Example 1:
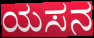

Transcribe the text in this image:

ಯಸನ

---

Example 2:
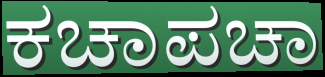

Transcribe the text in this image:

ಕಚಾಪಚಾ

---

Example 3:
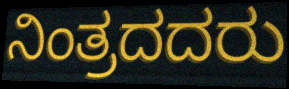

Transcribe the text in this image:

ನಿಂತ್ರದದರು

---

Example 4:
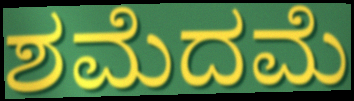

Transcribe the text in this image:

ಶಮೆದಮೆ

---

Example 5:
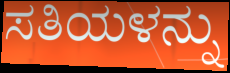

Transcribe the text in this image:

ಸತಿಯಳನ್ನು